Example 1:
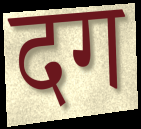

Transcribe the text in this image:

दग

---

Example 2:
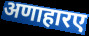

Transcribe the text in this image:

अणाहारए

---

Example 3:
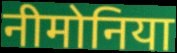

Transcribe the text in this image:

नीमोनिया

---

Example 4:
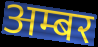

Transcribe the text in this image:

अम्‍बर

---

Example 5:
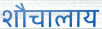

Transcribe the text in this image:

शौचालाय